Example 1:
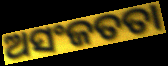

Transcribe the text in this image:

ଅସଂଜତତା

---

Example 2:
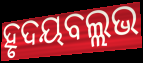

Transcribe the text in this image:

ହୃଦୟବଲ୍ଲଭ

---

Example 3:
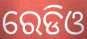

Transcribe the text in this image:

ରେଡିଓ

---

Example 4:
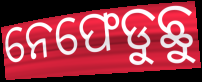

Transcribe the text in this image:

ନେଫେଡୁଛୁ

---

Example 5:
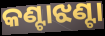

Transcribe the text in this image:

କଣ୍ଟାଝଣ୍ଟା